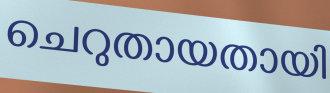
ചെറുതായതായി